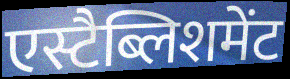
एस्टैब्लिशमेंट